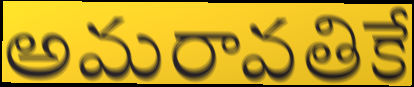
అమరావతికే